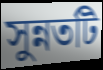
সুন্নতটি